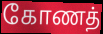
கோணத்